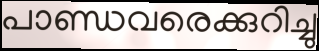
പാണ്ഡവരെക്കുറിച്ചു